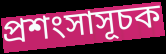
প্রশংসাসূচক